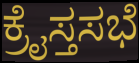
ಕ್ರೈಸ್ತಸಭೆ